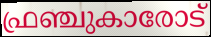
ഫ്രഞ്ചുകാരോട്